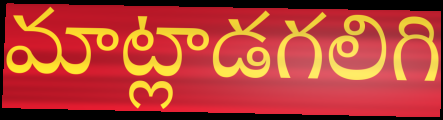
మాట్లాడగలిగి